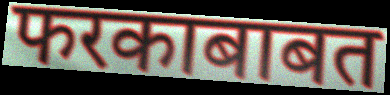
फरकाबाबत